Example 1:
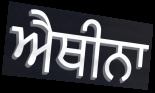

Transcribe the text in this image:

ਐਥੀਨਾ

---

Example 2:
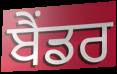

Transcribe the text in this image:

ਬੈਂਡਰ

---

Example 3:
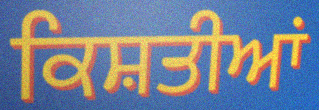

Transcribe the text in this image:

ਕਿਸ਼ਤੀਆਂ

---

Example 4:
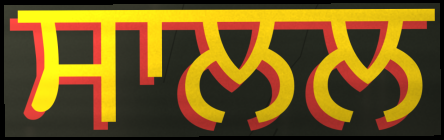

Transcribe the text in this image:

ਸਾਲਲ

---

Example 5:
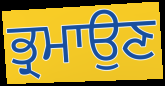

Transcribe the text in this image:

ਭ੍ਰਮਾਉਣ